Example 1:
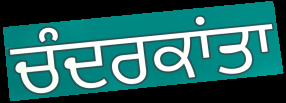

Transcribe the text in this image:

ਚੰਦਰਕਾਂਤਾ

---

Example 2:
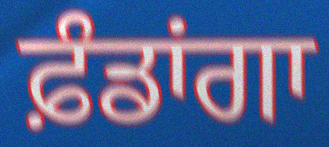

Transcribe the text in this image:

ਫ਼ੰਡਾਂਗਾ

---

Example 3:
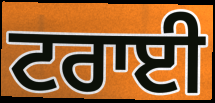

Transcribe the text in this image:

ਟਰਾਈ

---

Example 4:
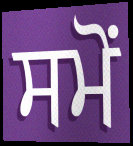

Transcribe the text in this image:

ਸਮੋਂ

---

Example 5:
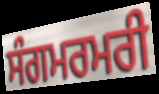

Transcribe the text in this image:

ਸੰਗਮਰਮਰੀ